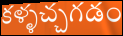
కళ్ళచ్చగడం